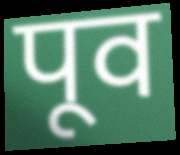
पूव